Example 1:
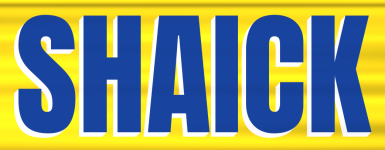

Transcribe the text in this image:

SHAICK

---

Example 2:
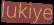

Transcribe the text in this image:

lukiye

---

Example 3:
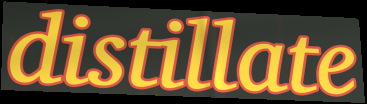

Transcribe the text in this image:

distillate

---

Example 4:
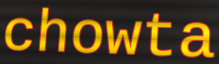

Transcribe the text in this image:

chowta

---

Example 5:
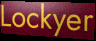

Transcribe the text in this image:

Lockyer